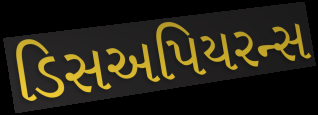
ડિસઅપિયરન્સ